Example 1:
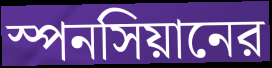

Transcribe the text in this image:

স্পনসিয়ানের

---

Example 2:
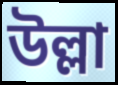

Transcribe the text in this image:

উল্লা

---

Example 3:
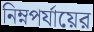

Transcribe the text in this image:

নিম্নপর্যায়ের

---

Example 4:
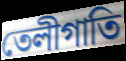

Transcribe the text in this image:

তেলীগাতি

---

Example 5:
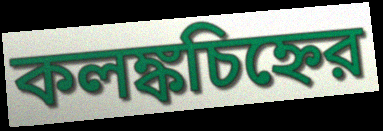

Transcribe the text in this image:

কলঙ্কচিহ্নের